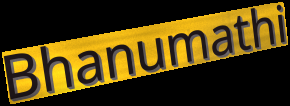
Bhanumathi